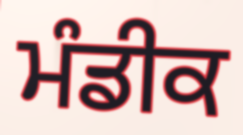
ਮੰਡੀਕ